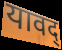
यावद्